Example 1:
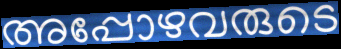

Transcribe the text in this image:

അപ്പോഴവരുടെ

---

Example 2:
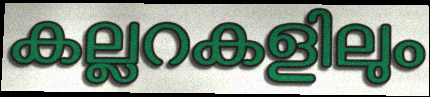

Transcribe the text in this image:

കല്ലറകളിലും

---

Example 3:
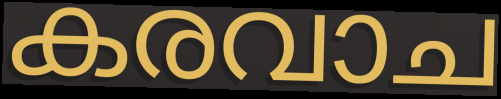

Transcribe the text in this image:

കരവാച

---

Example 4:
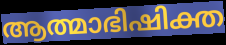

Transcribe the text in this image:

ആത്മാഭിഷിക്ത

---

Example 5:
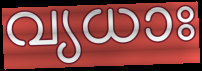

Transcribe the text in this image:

വ്യധാഃ